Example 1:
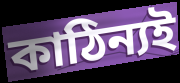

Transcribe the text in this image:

কাঠিন্যই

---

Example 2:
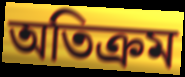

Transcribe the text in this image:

অতিক্ৰম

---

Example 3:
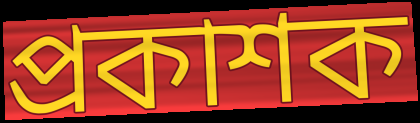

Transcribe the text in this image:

প্ৰকাশক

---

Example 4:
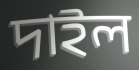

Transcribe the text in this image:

দাইল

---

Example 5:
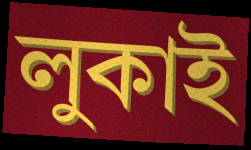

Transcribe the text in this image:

লুকাই